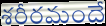
శరీరమందే